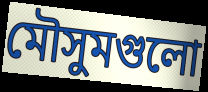
মৌসুমগুলো